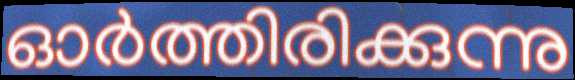
ഓർത്തിരിക്കുന്നു